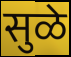
सुळे